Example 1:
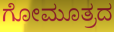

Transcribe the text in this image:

ಗೋಮೂತ್ರದ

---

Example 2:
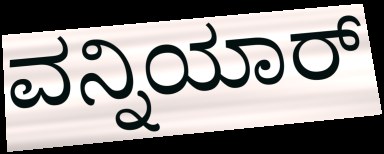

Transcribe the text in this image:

ವನ್ನಿಯಾರ್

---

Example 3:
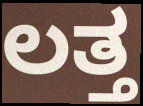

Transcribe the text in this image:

ಲತ್ತ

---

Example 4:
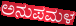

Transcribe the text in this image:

ಅನುಪಮಳ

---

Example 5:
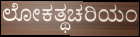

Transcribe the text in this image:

ಲೋಕತ್ಥಚರಿಯಂ